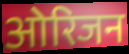
ओरिजन